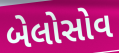
બેલોસોવ